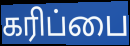
கரிப்பை